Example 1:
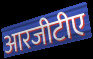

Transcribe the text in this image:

आरजीटीए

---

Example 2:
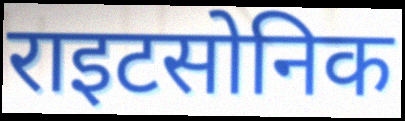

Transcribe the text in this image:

राइटसोनिक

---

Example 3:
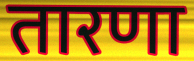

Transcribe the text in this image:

तारणा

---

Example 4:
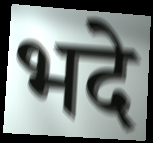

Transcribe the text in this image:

भदे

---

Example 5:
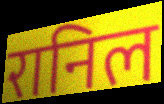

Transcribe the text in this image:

रानिल